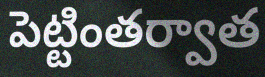
పెట్టింతర్వాత